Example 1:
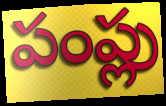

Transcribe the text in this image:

పంప్లు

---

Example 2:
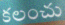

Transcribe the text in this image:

కలంచు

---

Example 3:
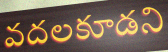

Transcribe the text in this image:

వదలకూడని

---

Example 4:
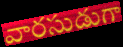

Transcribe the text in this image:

వారసుడుగా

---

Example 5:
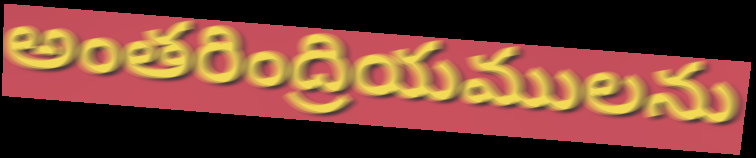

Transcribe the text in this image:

అంతరింద్రియములను